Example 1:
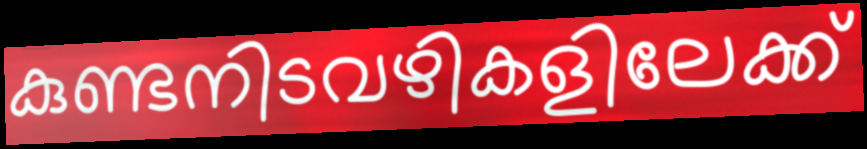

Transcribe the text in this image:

കുണ്ടനിടവഴികളിലേക്ക്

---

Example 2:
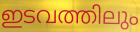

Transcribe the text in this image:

ഇടവത്തിലും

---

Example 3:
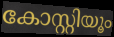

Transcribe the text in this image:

കോസ്റ്റിയൂം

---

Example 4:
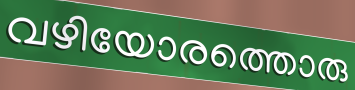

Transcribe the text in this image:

വഴിയോരത്തൊരു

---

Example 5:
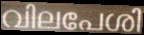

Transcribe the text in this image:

വിലപേശി